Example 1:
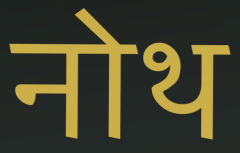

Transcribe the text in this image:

नोथ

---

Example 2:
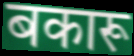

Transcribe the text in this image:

बकारू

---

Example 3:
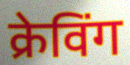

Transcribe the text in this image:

क्रेविंग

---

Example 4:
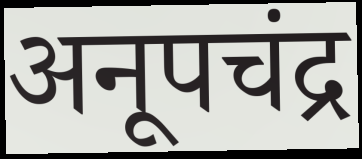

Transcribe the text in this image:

अनूपचंद्र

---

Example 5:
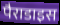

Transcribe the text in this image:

पैराडाइस